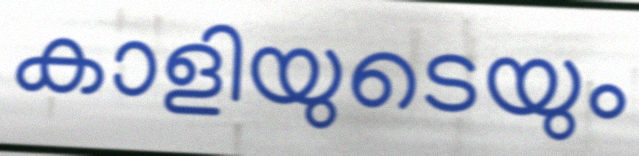
കാളിയുടെയും